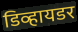
डिव्हायडर